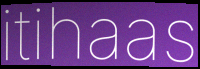
itihaas